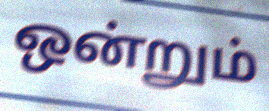
ஒன்றும்